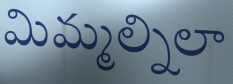
మిమ్మల్నిలా